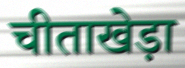
चीताखेड़ा